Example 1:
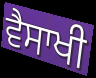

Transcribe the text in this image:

ਵੈਸਾਖੀ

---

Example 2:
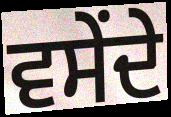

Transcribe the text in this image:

ਵਸੇਂਦੇ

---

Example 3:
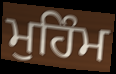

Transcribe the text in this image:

ਮੁਹਿੰਮ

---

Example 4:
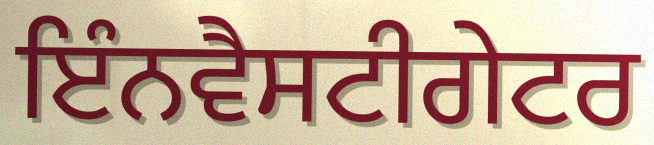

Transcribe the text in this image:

ਇੰਨਵੈਸਟੀਗੇਟਰ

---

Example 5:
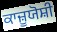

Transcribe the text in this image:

ਕਾਜ਼ੂਯੋਸ਼ੀ